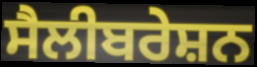
ਸੈਲੀਬਰੇਸ਼ਨ